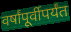
वर्षांपूर्वीपर्यंत